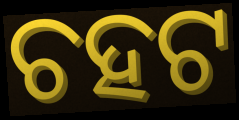
ଚହଟ